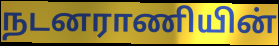
நடனராணியின்